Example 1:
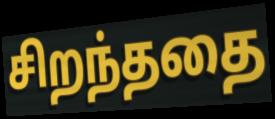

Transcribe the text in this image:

சிறந்ததை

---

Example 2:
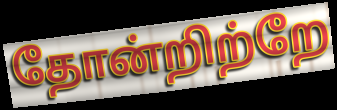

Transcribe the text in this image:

தோன்றிற்றே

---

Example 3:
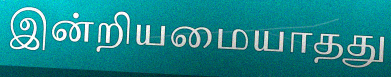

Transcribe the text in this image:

இன்றியமையாதது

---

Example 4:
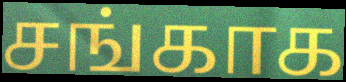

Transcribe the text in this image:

சங்காக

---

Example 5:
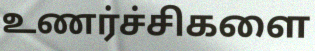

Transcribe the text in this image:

உணர்ச்சிகளை